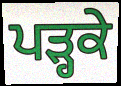
ਪੜ੍ਹਕੇ